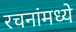
रचनांमध्ये